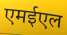
एमईएल